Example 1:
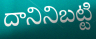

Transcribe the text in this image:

దానినిబట్టి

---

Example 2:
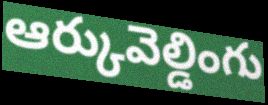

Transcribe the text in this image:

ఆర్కువెల్డింగు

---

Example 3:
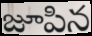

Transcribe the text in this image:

జూపిన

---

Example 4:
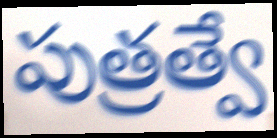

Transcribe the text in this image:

పుత్రత్వే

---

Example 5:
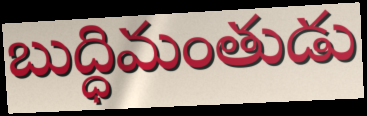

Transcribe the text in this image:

బుద్ధిమంతుడు